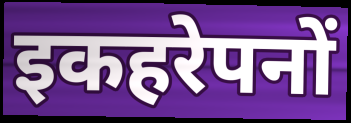
इकहरेपनों